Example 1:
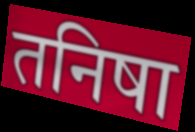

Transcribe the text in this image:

तनिषा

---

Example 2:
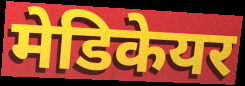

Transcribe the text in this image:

मेडिकेयर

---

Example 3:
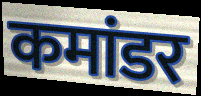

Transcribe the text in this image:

कमांडर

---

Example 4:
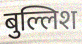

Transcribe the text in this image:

बुल्लिश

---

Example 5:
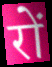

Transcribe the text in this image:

रों